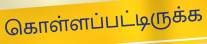
கொள்ளப்பட்டிருக்க